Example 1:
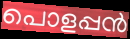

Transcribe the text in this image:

പൊളപ്പൻ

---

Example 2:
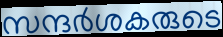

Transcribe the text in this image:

സന്ദർശകരുടെ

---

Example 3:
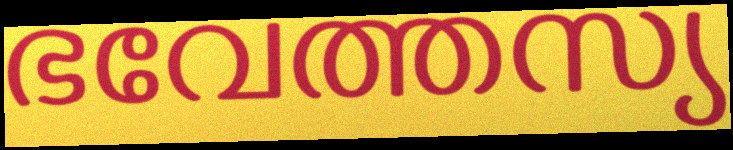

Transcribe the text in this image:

ഭവേത്തസ്യ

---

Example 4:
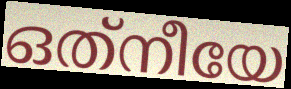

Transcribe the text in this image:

ഒത്‌നീയേ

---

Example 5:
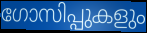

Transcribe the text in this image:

ഗോസിപ്പുകളും